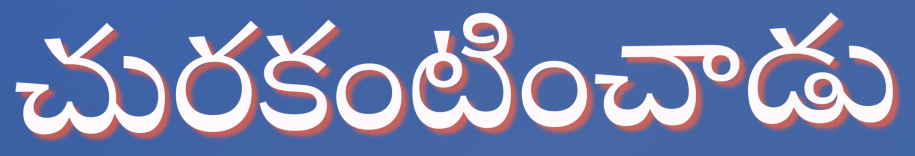
చురకంటించాడు